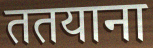
ततयाना